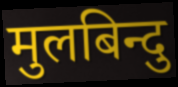
मुलबिन्दु